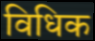
विधिक